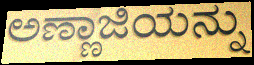
ಅಣ್ಣಾಜಿಯನ್ನು